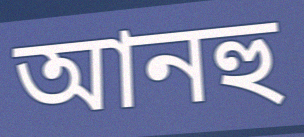
আনহু